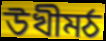
উখীমঠ